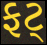
ફટ્